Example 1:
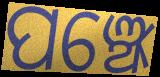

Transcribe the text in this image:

ପଞ୍ଝେ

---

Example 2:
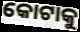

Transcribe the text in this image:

କୋଟାକୁ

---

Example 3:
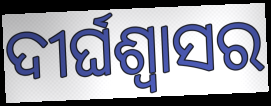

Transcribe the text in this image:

ଦୀର୍ଘଶ୍ବାସର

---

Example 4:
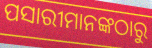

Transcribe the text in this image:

ପସାରୀମାନଙ୍କଠାରୁ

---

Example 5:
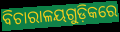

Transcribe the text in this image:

ବିଚାରାଳୟଗୁଡ଼ିକରେ